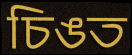
চিঙত